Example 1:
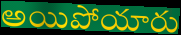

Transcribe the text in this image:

అయిపోయారు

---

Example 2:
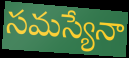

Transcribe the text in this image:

సమస్యేనా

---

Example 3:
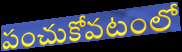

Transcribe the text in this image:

పంచుకోవటంలో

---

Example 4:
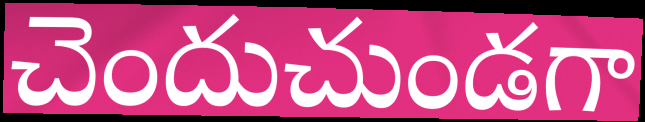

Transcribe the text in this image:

చెందుచుండగా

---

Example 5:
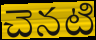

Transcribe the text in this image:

చెనటి